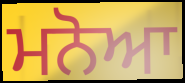
ਮਨੋਆ